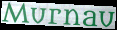
Murnau